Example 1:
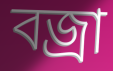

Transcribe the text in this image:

বজ্রা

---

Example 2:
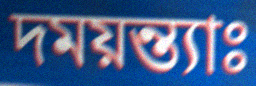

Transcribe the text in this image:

দময়ন্ত্যাঃ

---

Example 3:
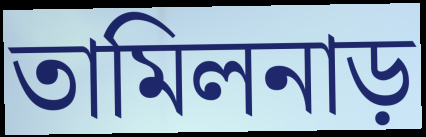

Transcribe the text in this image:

তামিলনাড়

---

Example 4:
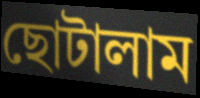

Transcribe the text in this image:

ছোটালাম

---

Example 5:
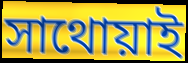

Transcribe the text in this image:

সাথোয়াই